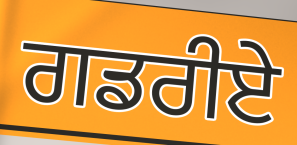
ਗਡਰੀਏ